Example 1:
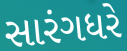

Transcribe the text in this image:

સારંગધરે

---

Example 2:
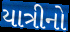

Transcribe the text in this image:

યાત્રીનો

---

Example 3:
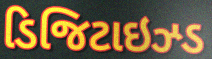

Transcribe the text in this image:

ડિજિટાઇઝ્ડ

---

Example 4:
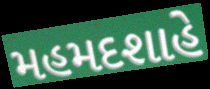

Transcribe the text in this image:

મહમદશાહે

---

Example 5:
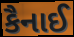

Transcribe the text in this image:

કૈનાઈ